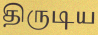
திருடிய